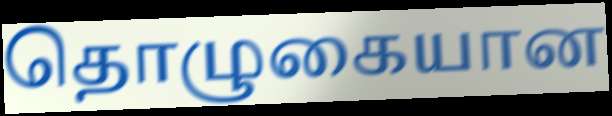
தொழுகையான